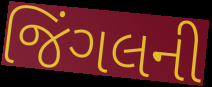
જિંગલની